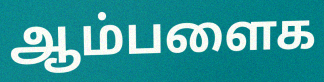
ஆம்பளைக